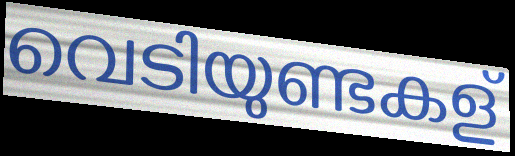
വെടിയുണ്ടകള്